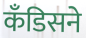
कँडिसने